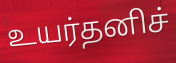
உயர்தனிச்